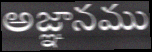
అజ్ఞానము